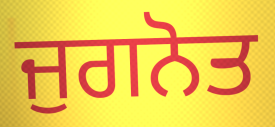
ਜੁਗਨੋਤ